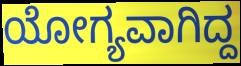
ಯೋಗ್ಯವಾಗಿದ್ದ